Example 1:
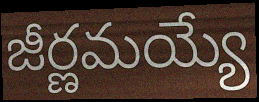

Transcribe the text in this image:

జీర్ణమయ్యే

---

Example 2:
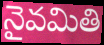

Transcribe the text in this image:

నైవమితి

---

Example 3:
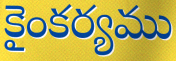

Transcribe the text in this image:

కైంకర్యము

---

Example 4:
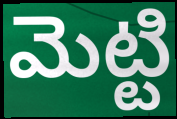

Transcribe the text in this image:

మెట్టి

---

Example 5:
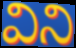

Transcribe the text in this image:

విని